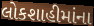
લોકશાહીમાંના